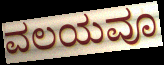
ವಲಯವೂ